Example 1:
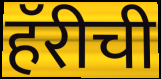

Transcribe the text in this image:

हॅरीची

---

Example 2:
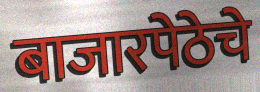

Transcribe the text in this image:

बाजारपेठेचे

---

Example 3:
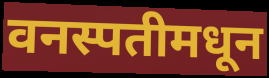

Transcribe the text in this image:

वनस्पतीमधून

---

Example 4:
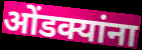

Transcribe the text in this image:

ओंडक्यांना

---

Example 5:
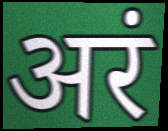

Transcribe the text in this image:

अरं